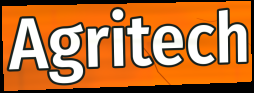
Agritech